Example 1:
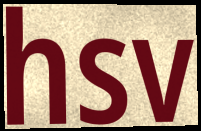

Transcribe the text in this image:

hsv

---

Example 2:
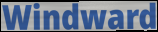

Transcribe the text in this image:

Windward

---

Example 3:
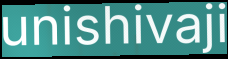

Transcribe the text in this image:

unishivaji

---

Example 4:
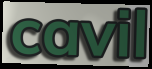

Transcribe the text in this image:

cavil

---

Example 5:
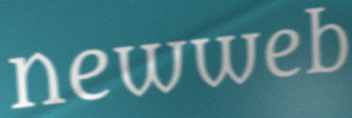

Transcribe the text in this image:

newweb